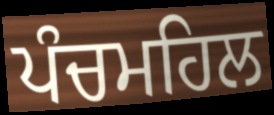
ਪੰਚਮਹਿਲ